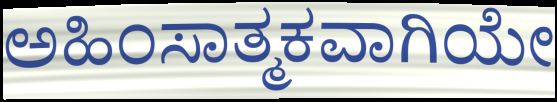
ಅಹಿಂಸಾತ್ಮಕವಾಗಿಯೇ